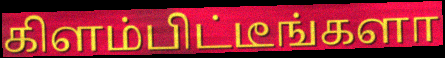
கிளம்பிட்டீங்களா